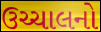
ઉચ્ચાલનો